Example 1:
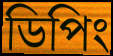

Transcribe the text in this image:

ডিপিং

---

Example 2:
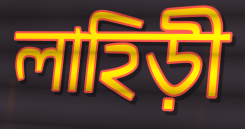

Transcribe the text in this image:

লাহিড়ী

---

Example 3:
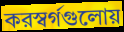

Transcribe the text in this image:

করস্বর্গগুলোয়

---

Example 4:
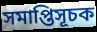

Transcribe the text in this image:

সমাপ্তিসূচক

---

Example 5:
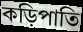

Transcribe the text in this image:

কড়িপাতি